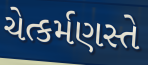
ચેત્કર્મણસ્તે